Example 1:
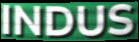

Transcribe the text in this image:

INDUS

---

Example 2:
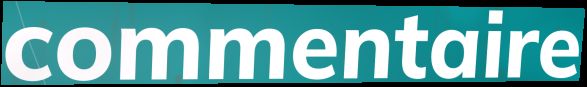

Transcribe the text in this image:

commentaire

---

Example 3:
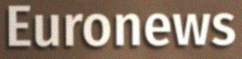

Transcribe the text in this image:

Euronews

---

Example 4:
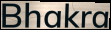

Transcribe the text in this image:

Bhakra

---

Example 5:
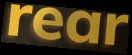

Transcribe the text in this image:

rear